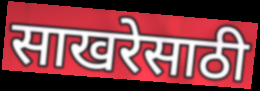
साखरेसाठी